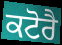
ਕਟੋਰੈ